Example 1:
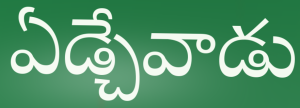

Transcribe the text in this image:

ఏడ్చేవాడు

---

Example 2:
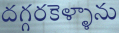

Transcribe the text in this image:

దగ్గరకెళ్ళాను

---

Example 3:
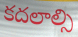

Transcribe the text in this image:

కదలాల్సి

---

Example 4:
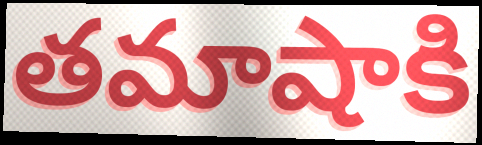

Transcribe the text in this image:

తమాషాకి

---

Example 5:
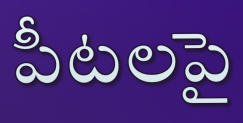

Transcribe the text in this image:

పీటలపై